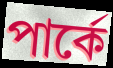
পার্কে